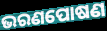
ଭରଣପୋଷଣ